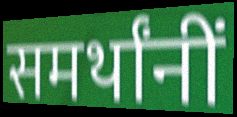
समर्थांनीं